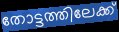
തോട്ടത്തിലേക്ക്